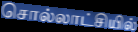
சொல்லாட்சியில்